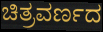
ಚಿತ್ರವರ್ಣದ